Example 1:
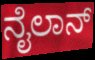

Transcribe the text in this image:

ನೈಲಾನ್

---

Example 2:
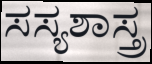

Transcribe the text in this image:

ಸಸ್ಯಶಾಸ್ತ್ರ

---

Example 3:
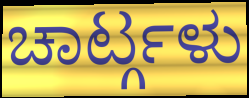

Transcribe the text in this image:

ಚಾರ್ಟ್ಗಳು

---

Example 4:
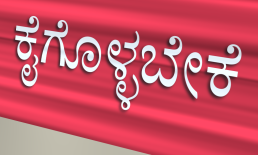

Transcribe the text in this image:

ಕೈಗೊಳ್ಳಬೇಕೆ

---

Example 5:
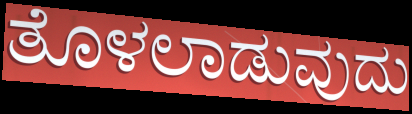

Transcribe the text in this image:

ತೊಳಲಾಡುವುದು